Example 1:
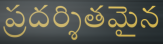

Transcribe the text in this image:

ప్రదర్శితమైన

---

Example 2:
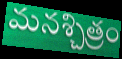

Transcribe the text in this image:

మనశ్చిత్రం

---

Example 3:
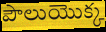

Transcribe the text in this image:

పౌలుయొక్క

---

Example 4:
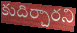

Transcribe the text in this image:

కుదిర్చారని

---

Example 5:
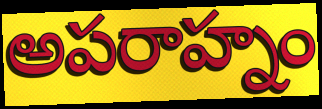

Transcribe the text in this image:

అపరాహ్నం